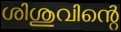
ശിശുവിന്റെ